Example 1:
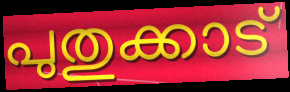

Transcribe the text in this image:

പുതുക്കാട്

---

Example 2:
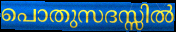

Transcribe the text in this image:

പൊതുസദസ്സിൽ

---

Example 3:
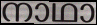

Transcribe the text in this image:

നാഥാ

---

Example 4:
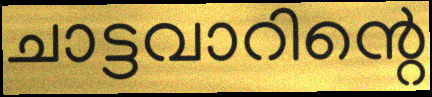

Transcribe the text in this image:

ചാട്ടവാറിന്റെ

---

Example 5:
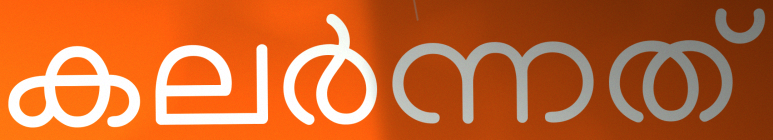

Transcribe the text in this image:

കലർന്നത്